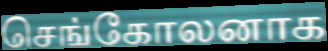
செங்கோலனாக